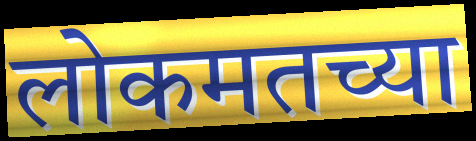
लोकमतच्या